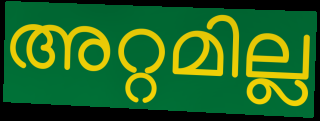
അറ്റമില്ല